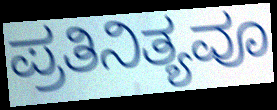
ಪ್ರತಿನಿತ್ಯವೂ